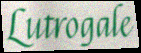
Lutrogale